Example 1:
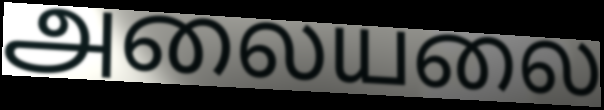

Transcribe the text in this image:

அலையலை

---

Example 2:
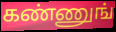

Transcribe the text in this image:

கண்ணுங்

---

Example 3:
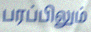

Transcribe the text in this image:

பரப்பிலும்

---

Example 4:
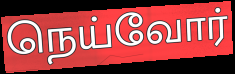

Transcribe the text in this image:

நெய்வோர்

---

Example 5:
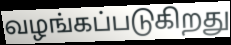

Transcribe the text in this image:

வழங்கப்படுகிறது